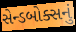
સેન્ડબોક્સનું